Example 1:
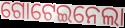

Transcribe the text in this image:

ଗୋଟେଇନେଲା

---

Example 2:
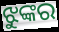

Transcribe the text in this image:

ଝୁଙ୍କର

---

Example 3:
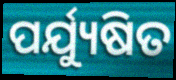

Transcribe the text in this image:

ପର୍ଯ୍ୟୁଷିତ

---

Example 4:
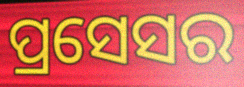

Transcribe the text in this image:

ପ୍ରସେସର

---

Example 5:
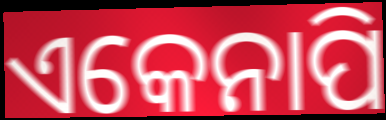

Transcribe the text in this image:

ଏକେନାପି